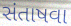
સંતાષવા